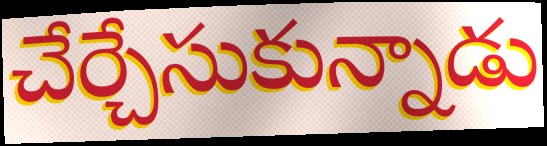
చేర్చేసుకున్నాడు